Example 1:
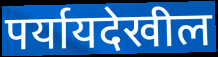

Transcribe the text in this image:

पर्यायदेखील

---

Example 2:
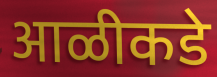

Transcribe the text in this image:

आळीकडे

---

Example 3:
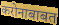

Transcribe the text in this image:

करोनाबाबत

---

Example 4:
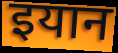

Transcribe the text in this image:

इयान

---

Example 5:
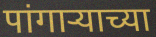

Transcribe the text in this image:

पांगार्‍याच्या